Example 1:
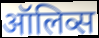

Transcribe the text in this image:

ऑलिव्स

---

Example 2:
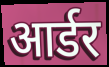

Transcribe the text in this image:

आर्डर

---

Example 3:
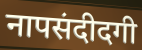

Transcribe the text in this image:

नापसंदीदगी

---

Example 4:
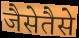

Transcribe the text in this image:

जैसेतैसे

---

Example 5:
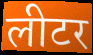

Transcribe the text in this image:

लीटर